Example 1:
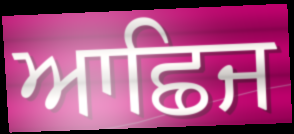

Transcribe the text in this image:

ਆਛਿਜ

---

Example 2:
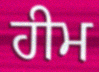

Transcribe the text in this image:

ਹੀਮ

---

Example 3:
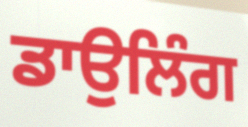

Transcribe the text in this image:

ਡਾਉਲਿੰਗ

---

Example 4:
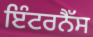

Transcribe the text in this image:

ਇੰਟਰਨੈੱਸ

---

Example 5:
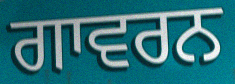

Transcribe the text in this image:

ਗਾਵਰਨ